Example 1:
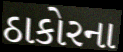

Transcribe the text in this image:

ઠાકોરના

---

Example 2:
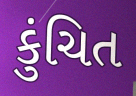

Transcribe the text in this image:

કુંચિત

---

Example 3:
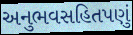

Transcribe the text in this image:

અનુભવસહિતપણું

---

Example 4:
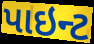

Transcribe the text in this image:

પાઇન્ટ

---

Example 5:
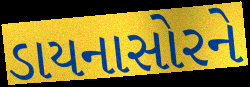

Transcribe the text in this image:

ડાયનાસોરને